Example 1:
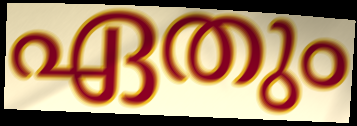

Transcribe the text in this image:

ഏതും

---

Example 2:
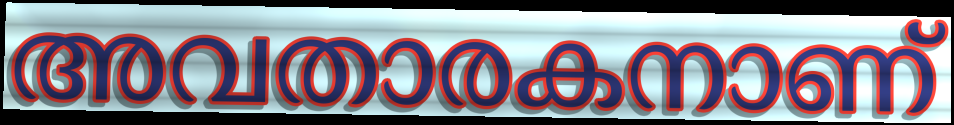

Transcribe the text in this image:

അവതാരകനാണ്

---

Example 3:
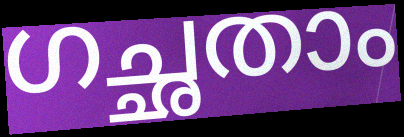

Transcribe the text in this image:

ഗച്ഛതാം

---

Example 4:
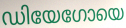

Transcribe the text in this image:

ഡിയേഗോയെ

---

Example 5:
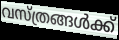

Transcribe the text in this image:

വസ്ത്രങ്ങൾക്ക്